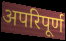
अपरिपूर्ण